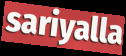
sariyalla